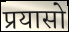
प्रयासो